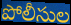
పోలీసుల